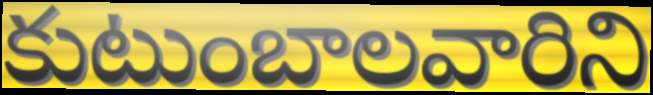
కుటుంబాలవారిని